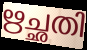
ഋച്ഛതി